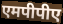
एमपीपीए